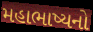
મહાભાષ્યનો